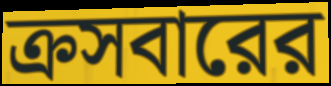
ক্রসবারের